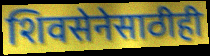
शिवसेनेसाठीही